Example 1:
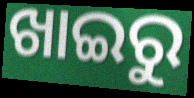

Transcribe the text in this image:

ଖାଇରୁ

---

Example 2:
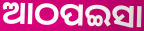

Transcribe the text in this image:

ଆଠପଇସା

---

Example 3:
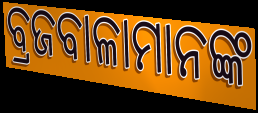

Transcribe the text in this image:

ବ୍ରଜବାଳାମାନଙ୍କ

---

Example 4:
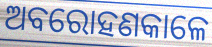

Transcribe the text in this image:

ଅବରୋହଣକାଳେ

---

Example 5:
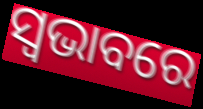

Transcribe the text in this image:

ସ୍ବଭାବରେ